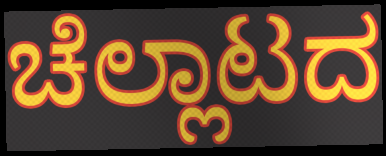
ಚೆಲ್ಲಾಟದ